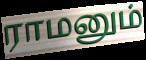
ராமனும்